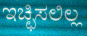
ಇಚ್ಛಿಸಲಿಲ್ಲ